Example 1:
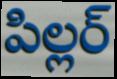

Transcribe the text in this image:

పిల్లర్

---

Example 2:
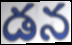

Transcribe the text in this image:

డన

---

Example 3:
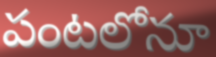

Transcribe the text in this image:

పంటలోనూ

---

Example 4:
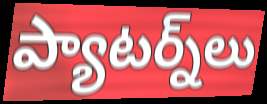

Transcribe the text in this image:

ప్యాటర్న్‌లు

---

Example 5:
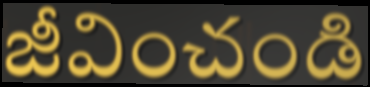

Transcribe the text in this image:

జీవించండి